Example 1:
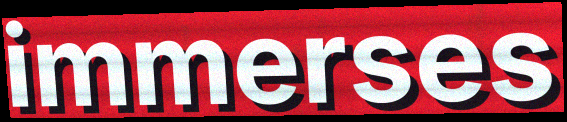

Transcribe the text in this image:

immerses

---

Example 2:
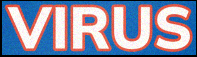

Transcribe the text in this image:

VIRUS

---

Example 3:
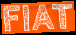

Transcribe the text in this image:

FIAT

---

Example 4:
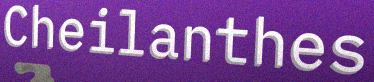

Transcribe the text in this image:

Cheilanthes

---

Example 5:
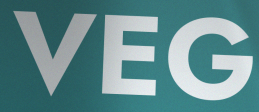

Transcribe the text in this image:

VEG